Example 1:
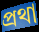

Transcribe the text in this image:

প্রথা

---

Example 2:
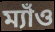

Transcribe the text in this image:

ম্যাঁও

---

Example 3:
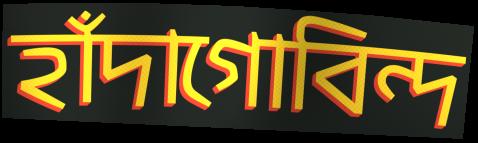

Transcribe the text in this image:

হাঁদাগোবিন্দ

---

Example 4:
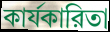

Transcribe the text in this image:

কার্যকারিতা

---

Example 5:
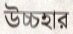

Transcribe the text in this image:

উচ্চহার